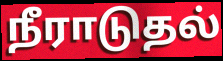
நீராடுதல்